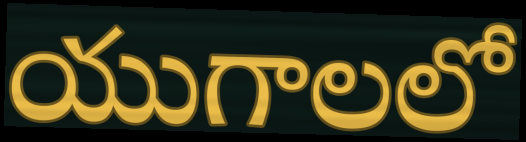
యుగాలలో